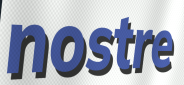
nostre